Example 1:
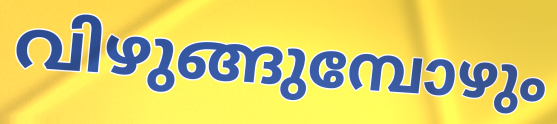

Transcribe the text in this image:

വിഴുങ്ങുമ്പോഴും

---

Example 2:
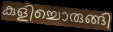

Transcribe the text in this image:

കുളിച്ചൊരുങ്ങി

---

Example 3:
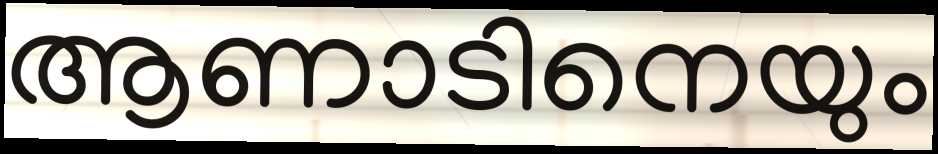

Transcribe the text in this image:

ആണാടിനെയും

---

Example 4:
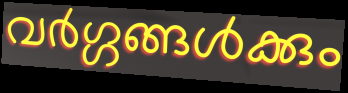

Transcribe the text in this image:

വർഗ്ഗങ്ങൾക്കും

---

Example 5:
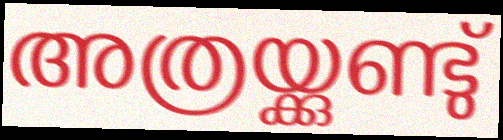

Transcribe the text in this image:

അത്രയ്ക്കുണ്ടു്